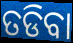
ତଡିବା